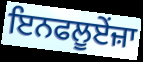
ਇਨਫਲੂਏਂਜ਼ਾ